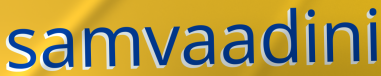
samvaadini